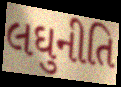
લઘુનીતિ